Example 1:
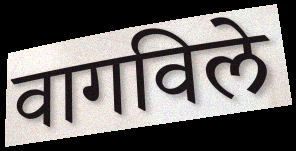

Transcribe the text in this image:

वागविले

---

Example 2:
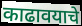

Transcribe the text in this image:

काढावयाचे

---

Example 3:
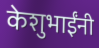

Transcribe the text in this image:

केशुभाईंनी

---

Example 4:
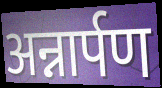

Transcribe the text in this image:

अन्नार्पण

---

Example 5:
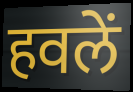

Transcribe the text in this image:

हवलें